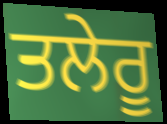
ਤਲੇਰੂ